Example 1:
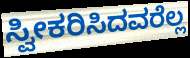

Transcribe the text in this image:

ಸ್ವೀಕರಿಸಿದವರೆಲ್ಲ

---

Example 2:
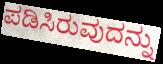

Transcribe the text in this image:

ಪಡಿಸಿರುವುದನ್ನು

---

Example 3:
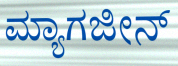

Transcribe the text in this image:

ಮ್ಯಾಗಜೀನ್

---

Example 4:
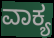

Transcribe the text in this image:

ವಾಕ್ಯ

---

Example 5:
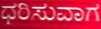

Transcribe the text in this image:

ಧರಿಸುವಾಗ